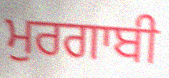
ਮੁਰਗਾਬੀ